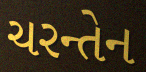
ચરન્તેન